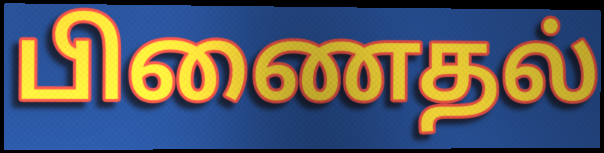
பிணைதல்